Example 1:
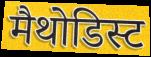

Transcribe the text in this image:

मैथोडिस्ट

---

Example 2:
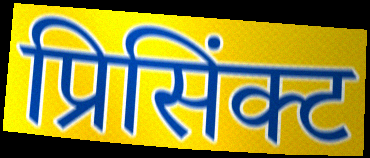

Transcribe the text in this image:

प्रिसिंक्ट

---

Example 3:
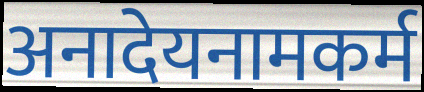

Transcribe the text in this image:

अनादेयनामकर्म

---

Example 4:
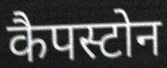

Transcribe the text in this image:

कैपस्टोन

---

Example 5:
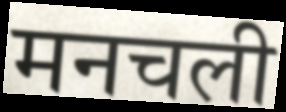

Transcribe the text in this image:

मनचली